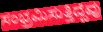
ಸಂಭ್ರಮಿಸುತ್ತಿದ್ದೆವು